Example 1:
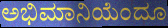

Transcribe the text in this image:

ಅಭಿಮಾನಿಯೆಂದೂ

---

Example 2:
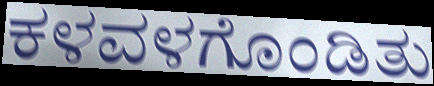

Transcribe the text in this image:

ಕಳವಳಗೊಂಡಿತು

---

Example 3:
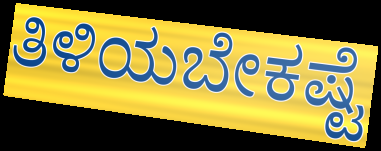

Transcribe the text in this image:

ತಿಳಿಯಬೇಕಷ್ಟೆ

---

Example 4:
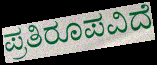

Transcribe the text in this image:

ಪ್ರತಿರೂಪವಿದೆ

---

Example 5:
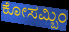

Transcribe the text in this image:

ಕೋಸಮ್ಬಿಂ